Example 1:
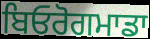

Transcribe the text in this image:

ਬਿਓਰੋਗਮਾਡਾ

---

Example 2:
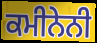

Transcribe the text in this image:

ਕਮੀਨੇਨੀ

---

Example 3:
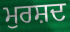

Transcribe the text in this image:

ਮੁਰਸ਼ਦ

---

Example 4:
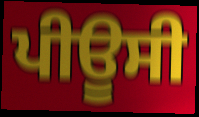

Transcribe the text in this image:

ਪੀਊਸੀ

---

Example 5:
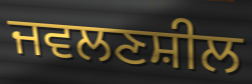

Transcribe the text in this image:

ਜਵਲਣਸ਼ੀਲ